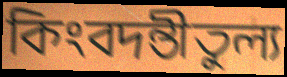
কিংবদন্তীতুল্য